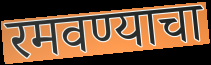
रमवण्याचा